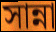
সান্না